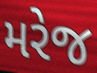
મરેજ